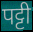
पट्टी